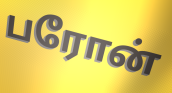
பரோன்